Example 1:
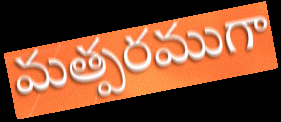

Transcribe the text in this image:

మత్పరముగా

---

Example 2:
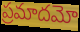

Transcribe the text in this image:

ప్రమాదమో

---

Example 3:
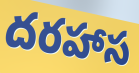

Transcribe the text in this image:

దరహాస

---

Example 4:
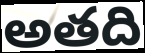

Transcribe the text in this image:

అతది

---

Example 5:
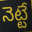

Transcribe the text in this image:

నెట్టే